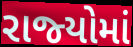
રાજ્‍યોમાં